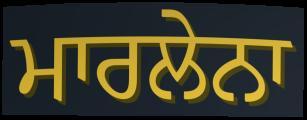
ਮਾਰਲੇਨਾ